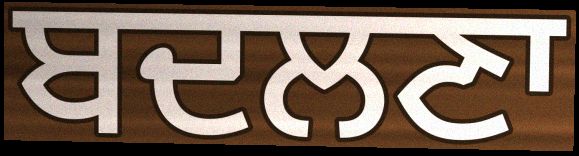
ਬਦਲਣਾ